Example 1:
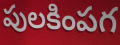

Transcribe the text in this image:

పులకింపగ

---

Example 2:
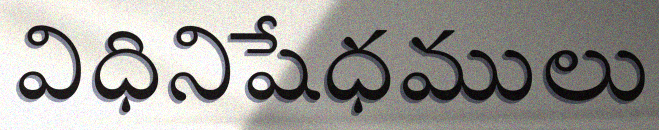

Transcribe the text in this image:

విధినిషేధములు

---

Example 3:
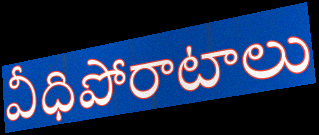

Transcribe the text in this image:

వీధిపోరాటాలు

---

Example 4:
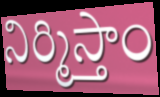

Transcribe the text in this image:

నిర్మిస్తాం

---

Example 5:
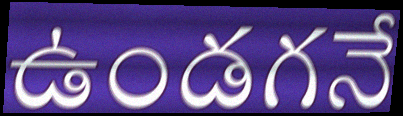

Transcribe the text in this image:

ఉండగనే